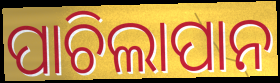
ପାଚିଲାପାନ